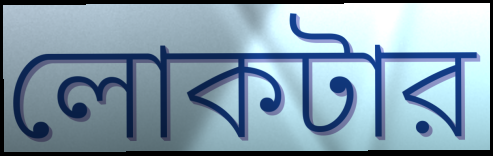
লোকটার